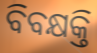
ବିବକ୍ଷକ୍ତି